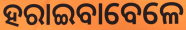
ହରାଇବାବେଳେ